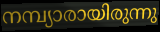
നമ്പ്യാരായിരുന്നു